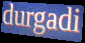
durgadi